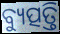
ବ୍ୟୁତ୍ପତ୍ତି